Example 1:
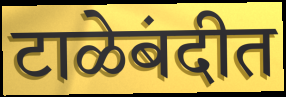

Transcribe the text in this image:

टाळेबंदीत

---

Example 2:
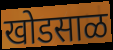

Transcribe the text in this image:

खोडसाळ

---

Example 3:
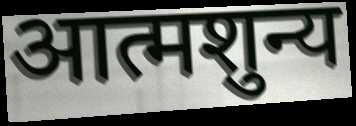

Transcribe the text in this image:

आत्मशुन्य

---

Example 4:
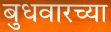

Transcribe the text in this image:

बुधवारच्या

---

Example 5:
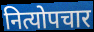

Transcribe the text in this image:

नित्योपचार